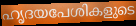
ഹൃദയപേശികളുടെ